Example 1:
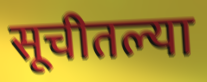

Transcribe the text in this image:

सूचीतल्या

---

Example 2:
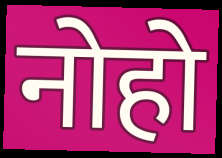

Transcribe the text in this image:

नोहो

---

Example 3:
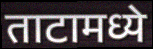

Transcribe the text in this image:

ताटामध्ये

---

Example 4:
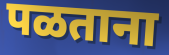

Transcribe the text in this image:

पळताना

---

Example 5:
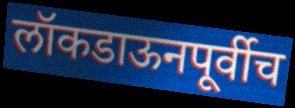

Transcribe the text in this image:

लॉकडाऊनपूर्वीच